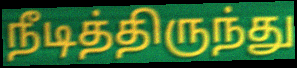
நீடித்திருந்து